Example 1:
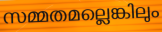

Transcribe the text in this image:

സമ്മതമല്ലെങ്കിലും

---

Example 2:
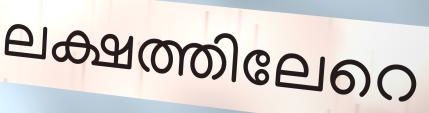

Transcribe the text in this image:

ലക്ഷത്തിലേറെ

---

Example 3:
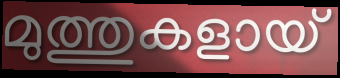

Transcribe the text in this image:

മുത്തുകളായ്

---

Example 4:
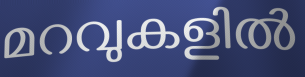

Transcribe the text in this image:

മറവുകളിൽ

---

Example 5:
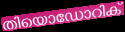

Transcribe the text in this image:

തിയൊഡോറിക്